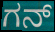
ಗನ್